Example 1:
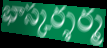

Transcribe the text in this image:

భాస్కర్శర్మ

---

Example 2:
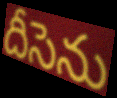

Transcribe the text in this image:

దీసెను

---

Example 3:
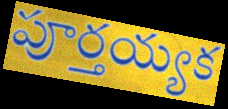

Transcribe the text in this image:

పూర్తయ్యక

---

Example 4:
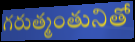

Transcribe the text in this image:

గరుత్మంతునితో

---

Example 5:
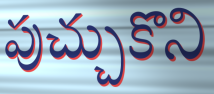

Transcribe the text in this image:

పుచ్చుకొని